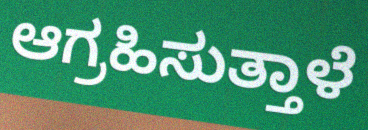
ಆಗ್ರಹಿಸುತ್ತಾಳೆ